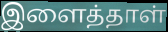
இளைத்தாள்